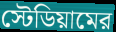
স্টেডিয়ামের